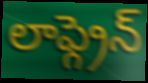
లాఫ్గ్రెన్